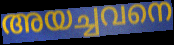
അയച്ചവനെ